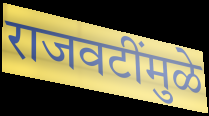
राजवटींमुळे